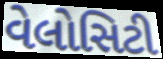
વેલોસિટી